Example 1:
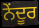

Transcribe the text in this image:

ਨੇਂਦੂਰ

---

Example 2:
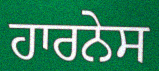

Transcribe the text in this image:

ਹਾਰਨੇਸ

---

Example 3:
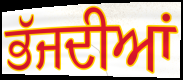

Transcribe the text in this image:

ਭੱਜਦੀਆਂ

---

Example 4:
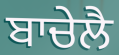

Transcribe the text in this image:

ਬਾਚੇਲੈ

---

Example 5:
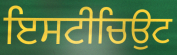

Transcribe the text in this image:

ਇਸਟੀਚਿਉਟ